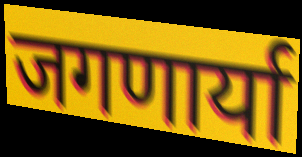
जगणार्या